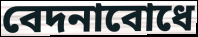
বেদনাবোধে